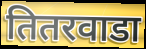
तितरवाडा